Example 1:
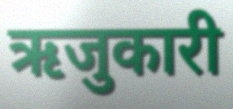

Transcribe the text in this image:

ऋजुकारी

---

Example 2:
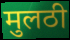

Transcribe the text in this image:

मुलठी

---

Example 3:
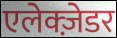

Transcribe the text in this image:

एलेक्ज़ेडर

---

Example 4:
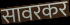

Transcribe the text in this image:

सावरकर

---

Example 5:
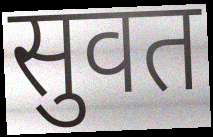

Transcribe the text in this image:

सुवत